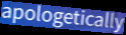
apologetically